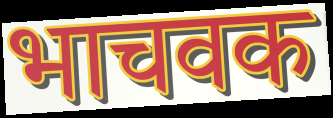
भाचवक